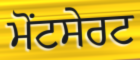
ਮੋਂਟਸੇਰਟ